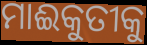
ମାଈକୁତୀକୁ